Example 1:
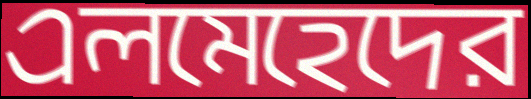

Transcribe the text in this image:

এলমেহেদের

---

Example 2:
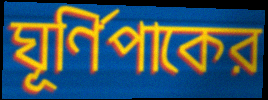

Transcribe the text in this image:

ঘূর্ণিপাকের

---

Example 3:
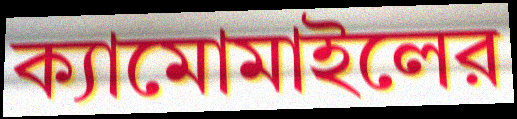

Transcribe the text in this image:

ক্যামোমাইলের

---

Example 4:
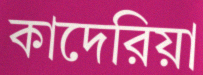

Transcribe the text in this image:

কাদেরিয়া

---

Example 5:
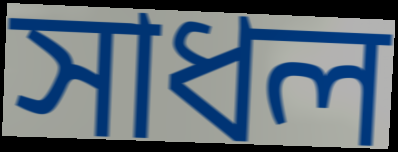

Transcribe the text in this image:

সাধল